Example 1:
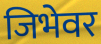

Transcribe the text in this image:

जिभेवर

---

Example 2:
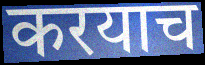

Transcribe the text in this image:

करयाच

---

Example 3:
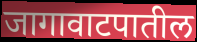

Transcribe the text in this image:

जागावाटपातील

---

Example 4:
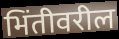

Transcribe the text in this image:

भिंतीवरील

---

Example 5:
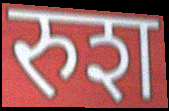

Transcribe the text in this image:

रुश